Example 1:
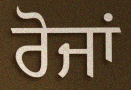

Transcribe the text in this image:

ਰੋਜਾਂ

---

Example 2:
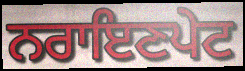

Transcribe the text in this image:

ਨਰਾਇਣਪੇਟ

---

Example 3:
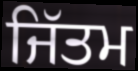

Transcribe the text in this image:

ਜਿੱਤਮ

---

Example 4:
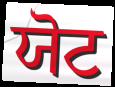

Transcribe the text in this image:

ਯੋਟ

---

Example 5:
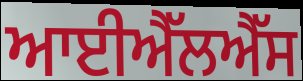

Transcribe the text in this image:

ਆਈਐੱਲਐੱਸ